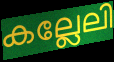
കല്ലേലി